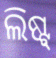
ଲିଷ୍ଟ୍